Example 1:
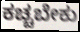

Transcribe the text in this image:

ಕಚ್ಚಬೇಕು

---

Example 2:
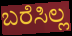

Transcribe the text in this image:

ಬರೆಸಿಲ್ಲ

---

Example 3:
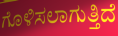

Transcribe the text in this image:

ಗೊಳಿಸಲಾಗುತ್ತಿದೆ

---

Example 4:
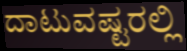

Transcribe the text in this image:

ದಾಟುವಷ್ಟರಲ್ಲಿ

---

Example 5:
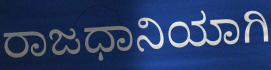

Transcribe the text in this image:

ರಾಜಧಾನಿಯಾಗಿ